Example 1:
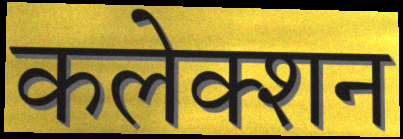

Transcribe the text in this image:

कलेक्शन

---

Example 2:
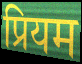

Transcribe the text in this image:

प्रियम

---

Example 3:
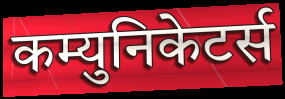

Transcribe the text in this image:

कम्युनिकेटर्स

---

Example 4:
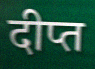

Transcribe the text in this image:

दीप्त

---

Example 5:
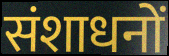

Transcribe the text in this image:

संशाधनों